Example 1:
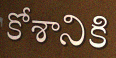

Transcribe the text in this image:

కోశానికి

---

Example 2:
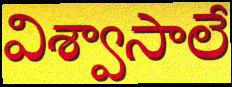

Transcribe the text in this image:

విశ్వాసాలే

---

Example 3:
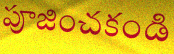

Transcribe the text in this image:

పూజించకండి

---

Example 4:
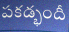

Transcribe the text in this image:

పకడ్భందీ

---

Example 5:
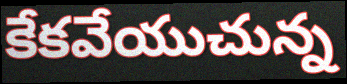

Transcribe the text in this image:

కేకవేయుచున్న